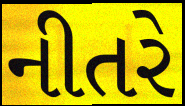
નીતરે